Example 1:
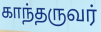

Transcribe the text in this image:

காந்தருவர்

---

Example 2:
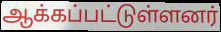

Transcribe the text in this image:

ஆக்கப்பட்டுள்ளனர்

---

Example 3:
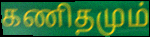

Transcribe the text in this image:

கணிதமும்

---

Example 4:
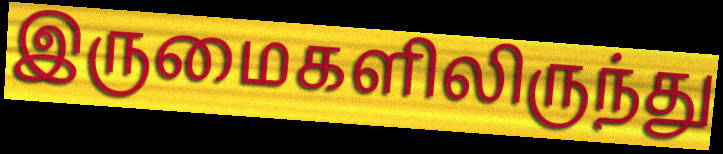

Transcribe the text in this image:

இருமைகளிலிருந்து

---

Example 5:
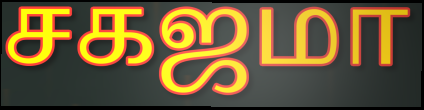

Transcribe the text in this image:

சகஜமா